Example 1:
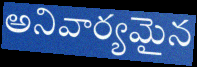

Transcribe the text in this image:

అనివార్యమైన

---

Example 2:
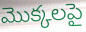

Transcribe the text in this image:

మొక్కలపై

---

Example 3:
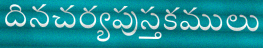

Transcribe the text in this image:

దినచర్యపుస్తకములు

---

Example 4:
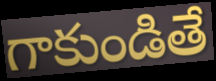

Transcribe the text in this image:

గాకుండితే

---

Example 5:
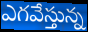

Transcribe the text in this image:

ఎగవేస్తున్న